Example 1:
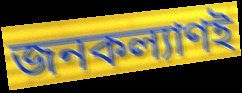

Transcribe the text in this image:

জনকল্যাণই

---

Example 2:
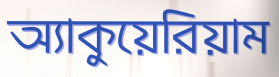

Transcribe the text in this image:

অ্যাকুয়েরিয়াম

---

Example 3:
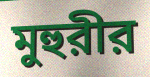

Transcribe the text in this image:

মুহুরীর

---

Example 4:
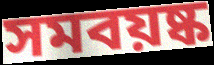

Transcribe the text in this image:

সমবয়ষ্ক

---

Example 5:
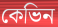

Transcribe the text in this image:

কেভিন